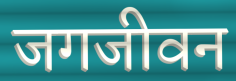
जगजीवन